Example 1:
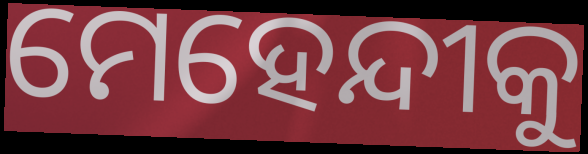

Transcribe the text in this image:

ମେହେନ୍ଦୀକୁ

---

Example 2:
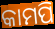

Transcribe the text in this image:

କାମପି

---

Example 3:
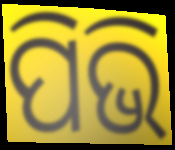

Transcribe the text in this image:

ପିଭି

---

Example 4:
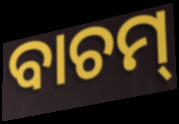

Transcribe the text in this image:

ବାଚମ୍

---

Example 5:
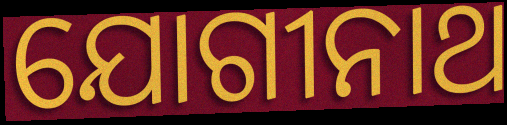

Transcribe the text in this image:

ଯୋଗୀନାଥ